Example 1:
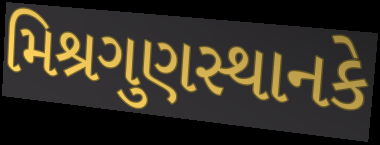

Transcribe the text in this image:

મિશ્રગુણસ્થાનકે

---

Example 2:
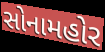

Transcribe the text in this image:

સોનામહોર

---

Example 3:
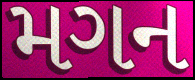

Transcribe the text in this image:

મગન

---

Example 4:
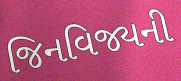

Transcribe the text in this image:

જિનવિજ્યની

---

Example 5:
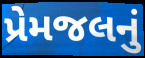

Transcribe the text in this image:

પ્રેમજલનું